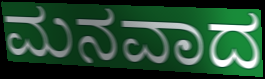
ಮನವಾದ